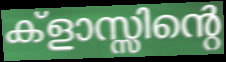
ക്ളാസ്സിന്റെ